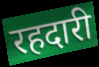
रहदारी